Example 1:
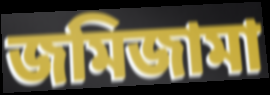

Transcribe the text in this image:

জমিজামা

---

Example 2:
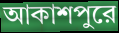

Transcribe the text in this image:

আকাশপুরে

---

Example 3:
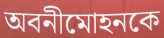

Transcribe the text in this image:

অবনীমোহনকে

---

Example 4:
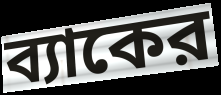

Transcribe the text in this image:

ব্যাকের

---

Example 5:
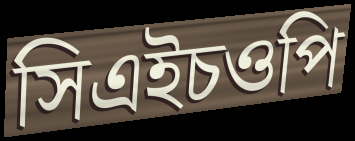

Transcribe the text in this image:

সিএইচওপি